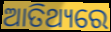
ଆତିଥ୍ୟରେ